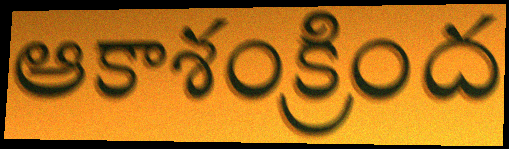
ఆకాశంక్రింద